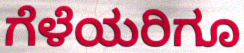
ಗೆಳೆಯರಿಗೂ